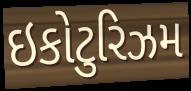
ઇકોટુરિઝમ